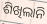
ଶିଖିଲାନି